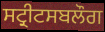
ਸਟ੍ਰੀਟਸਬਲੌਗ